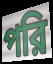
পরি